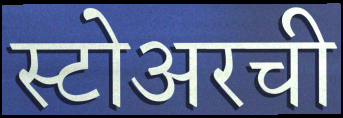
स्टोअरची